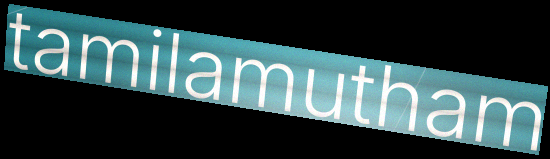
tamilamutham